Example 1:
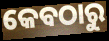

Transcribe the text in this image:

କେବଠାରୁ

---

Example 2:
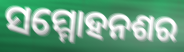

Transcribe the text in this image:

ସମ୍ମୋହନଶର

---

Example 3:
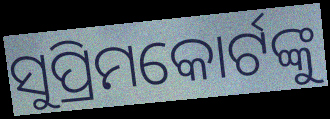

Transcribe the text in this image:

ସୁପ୍ରିମକୋର୍ଟଙ୍କୁ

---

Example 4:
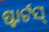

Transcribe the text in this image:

ଷ୍ଟାର୍ଟସ୍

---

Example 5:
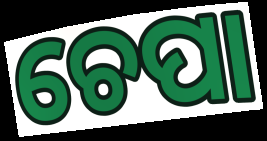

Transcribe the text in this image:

ଚେପା